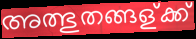
അത്ഭുതങ്ങള്ക്ക്